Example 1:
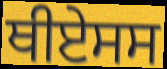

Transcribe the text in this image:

ਥੀਏਸਸ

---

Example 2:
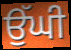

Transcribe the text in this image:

ਉੱਘੀ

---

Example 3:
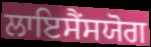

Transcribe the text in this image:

ਲਾਇਸੈਂਸਯੋਗ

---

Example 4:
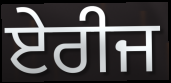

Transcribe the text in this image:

ਏਰੀਜ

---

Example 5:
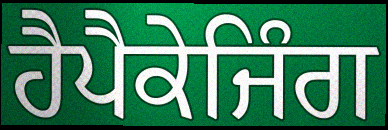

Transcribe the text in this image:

ਹੈਪੈਕੇਜਿੰਗ